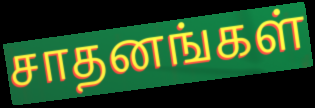
சாதனங்கள்